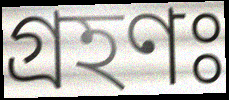
গ্রহণঃ